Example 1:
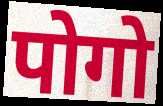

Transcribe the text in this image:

पोगो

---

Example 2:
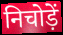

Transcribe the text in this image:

निचोड़ें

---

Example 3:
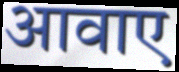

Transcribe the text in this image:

आवाए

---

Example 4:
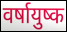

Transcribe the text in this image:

वर्षायुष्क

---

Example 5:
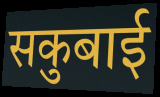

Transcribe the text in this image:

सकुबाई